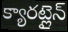
క్యారట్లైన్